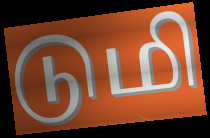
டுமி